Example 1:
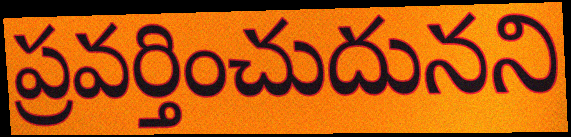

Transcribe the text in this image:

ప్రవర్తించుదునని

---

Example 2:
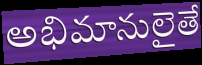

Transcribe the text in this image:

అభిమానులైతే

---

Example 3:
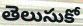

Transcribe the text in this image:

తెలుసుకో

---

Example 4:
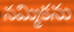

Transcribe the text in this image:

నమ్మికను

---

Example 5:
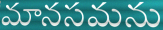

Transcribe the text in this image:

మానసమను